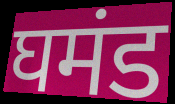
घमंड